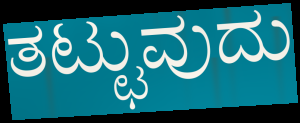
ತಟ್ಟುವುದು